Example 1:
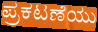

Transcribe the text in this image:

ಪ್ರಕಟಣೆಯು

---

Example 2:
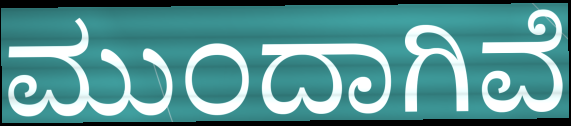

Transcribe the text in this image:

ಮುಂದಾಗಿವೆ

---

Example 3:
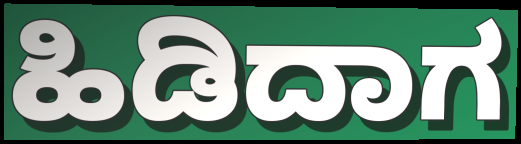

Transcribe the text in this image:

ಹಿಡಿದಾಗ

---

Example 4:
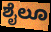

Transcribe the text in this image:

ಶೈಲೂ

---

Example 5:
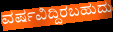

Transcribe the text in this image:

ವರ್ಷವಿದ್ದಿರಬಹುದು